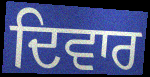
ਦਿਵਾਰ